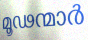
മൂഢന്മാർ